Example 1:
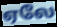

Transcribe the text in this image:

ஏலே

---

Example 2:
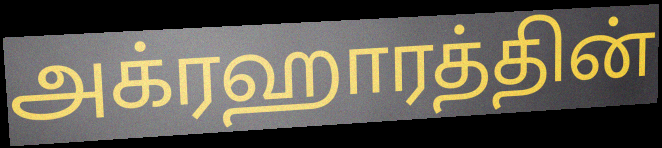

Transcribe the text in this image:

அக்ரஹாரத்தின்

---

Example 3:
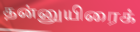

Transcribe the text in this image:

தன்னுயிரைக்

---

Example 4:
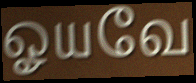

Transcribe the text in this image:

ஓயவே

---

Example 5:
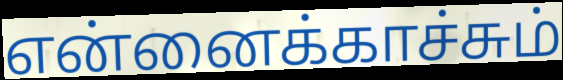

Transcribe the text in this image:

என்னைக்காச்சும்